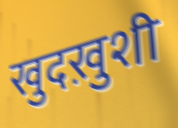
खुदख़ुशी